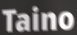
Taino